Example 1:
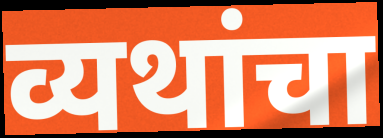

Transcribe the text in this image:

व्यथांचा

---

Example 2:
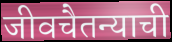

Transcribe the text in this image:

जीवचैतन्याची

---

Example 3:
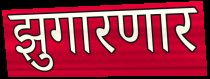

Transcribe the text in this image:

झुगारणार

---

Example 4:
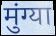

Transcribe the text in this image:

मुंग्या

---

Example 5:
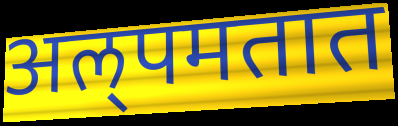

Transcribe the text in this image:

अल्पमतात